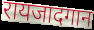
रायजादगान